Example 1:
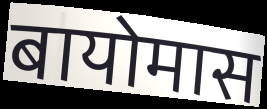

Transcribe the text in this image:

बायोमास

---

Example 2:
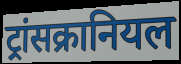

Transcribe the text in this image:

ट्रांसक्रानियल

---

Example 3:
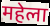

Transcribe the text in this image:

महेला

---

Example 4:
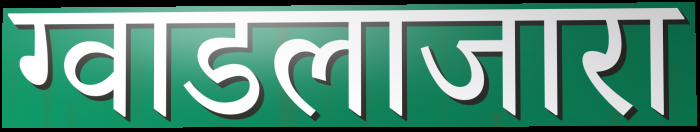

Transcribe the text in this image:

ग्वाडलाजारा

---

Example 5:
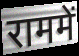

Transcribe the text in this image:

राममें